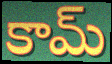
కామ్